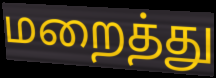
மறைத்து